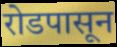
रोडपासून